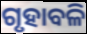
ଗୃହାବଳି